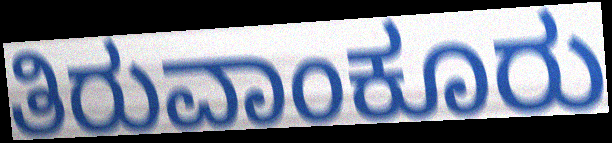
ತಿರುವಾಂಕೂರು